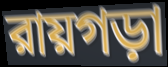
রায়গড়া